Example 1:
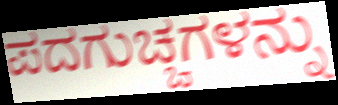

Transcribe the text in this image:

ಪದಗುಚ್ಚಗಳನ್ನು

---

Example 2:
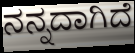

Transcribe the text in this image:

ನನ್ನದಾಗಿದೆ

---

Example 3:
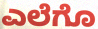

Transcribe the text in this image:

ಎಲೆಗೊ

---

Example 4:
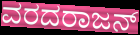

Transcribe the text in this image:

ವರದರಾಜನ್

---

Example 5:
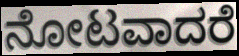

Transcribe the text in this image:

ನೋಟವಾದರೆ